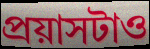
প্রয়াসটাও